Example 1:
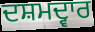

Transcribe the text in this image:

ਦਸ਼ਮਦ੍ਵਾਰ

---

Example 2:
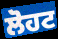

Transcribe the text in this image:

ਲੋਹਟ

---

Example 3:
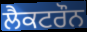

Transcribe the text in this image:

ਲੈਕਟਰੌਨ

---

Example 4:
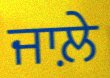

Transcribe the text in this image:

ਜਾਲ਼ੇ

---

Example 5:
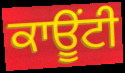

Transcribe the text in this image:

ਕਾਊਂਟੀ